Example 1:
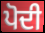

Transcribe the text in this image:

ਪੋਦੀ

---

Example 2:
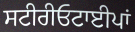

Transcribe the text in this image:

ਸਟੀਰੀਓਟਾਈਪਾਂ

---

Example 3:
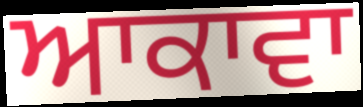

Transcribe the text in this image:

ਆਕਾਵਾ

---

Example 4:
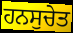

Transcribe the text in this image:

ਹਨਸੁਚੇਤ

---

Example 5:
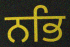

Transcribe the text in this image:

ਨਭਿ